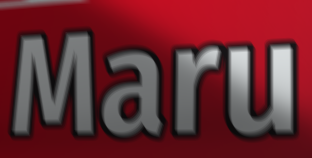
Maru